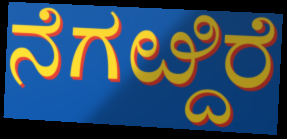
ನೆಗೞ್ದಿರೆ